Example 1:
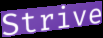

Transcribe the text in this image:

Strive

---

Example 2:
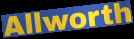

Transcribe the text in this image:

Allworth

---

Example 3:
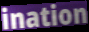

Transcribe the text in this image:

ination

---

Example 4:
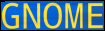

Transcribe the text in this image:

GNOME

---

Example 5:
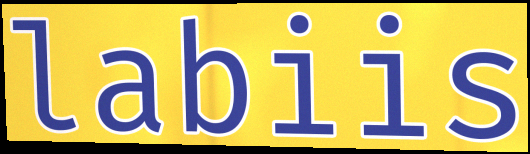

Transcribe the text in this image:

labiis